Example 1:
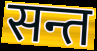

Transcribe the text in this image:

सन्‍त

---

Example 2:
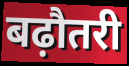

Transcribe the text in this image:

बढ़ौतरी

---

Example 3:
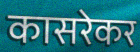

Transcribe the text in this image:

कासरेकर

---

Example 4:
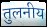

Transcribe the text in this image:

तुलनीय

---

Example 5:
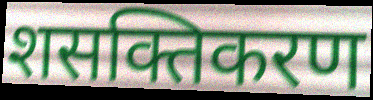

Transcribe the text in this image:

शसक्तिकरण